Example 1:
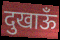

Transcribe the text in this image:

दुखाऊँ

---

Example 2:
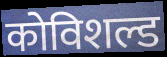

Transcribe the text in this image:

कोविशल्ड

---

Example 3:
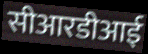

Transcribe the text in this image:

सीआरडीआई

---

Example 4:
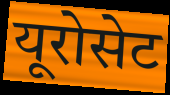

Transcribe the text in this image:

यूरोसेट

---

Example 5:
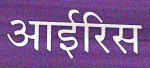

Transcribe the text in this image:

आईरिस